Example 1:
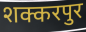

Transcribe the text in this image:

शक्करपुर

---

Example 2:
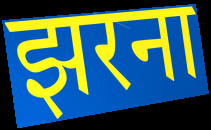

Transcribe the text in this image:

झरना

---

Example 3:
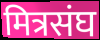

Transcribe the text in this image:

मित्रसंघ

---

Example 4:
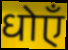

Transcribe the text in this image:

धोएँ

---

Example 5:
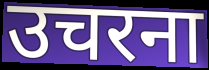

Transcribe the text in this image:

उचरना